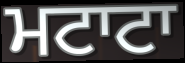
ਮਟਾਟਾ